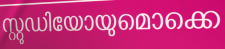
സ്റ്റുഡിയോയുമൊക്കെ